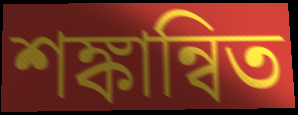
শঙ্কান্বিত